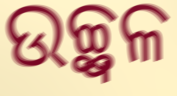
ଉଚ୍ଛ୍ୱଳ